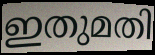
ഇതുമതി